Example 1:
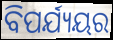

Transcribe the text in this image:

ବିପର୍ଯ୍ଯୟର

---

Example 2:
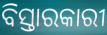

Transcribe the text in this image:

ବିସ୍ତାରକାରୀ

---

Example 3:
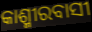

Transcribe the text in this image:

କାଶ୍ମୀରବାସୀ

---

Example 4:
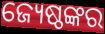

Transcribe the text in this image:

ଜ୍ୟେଷ୍ଠଙ୍କର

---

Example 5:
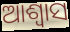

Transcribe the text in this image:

ଆଶ୍ୱାସ